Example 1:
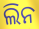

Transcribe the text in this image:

ଲିନ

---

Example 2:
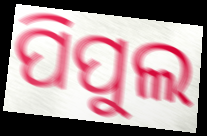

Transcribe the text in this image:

ପିପୁଲ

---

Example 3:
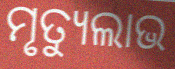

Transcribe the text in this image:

ମୃତ୍ୟୁଲାଭ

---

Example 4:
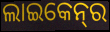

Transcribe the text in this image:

ଲାଇକେନ୍‌ର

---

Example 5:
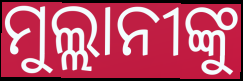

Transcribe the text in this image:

ମୁଲ୍ଲାନୀଙ୍କୁ